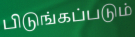
பிடுங்கப்படும்